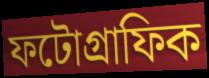
ফটোগ্রাফিক